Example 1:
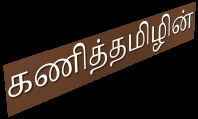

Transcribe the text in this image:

கணித்தமிழின்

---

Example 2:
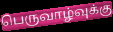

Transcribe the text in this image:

பெருவாழ்வுக்கு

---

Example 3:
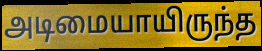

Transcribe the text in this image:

அடிமையாயிருந்த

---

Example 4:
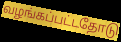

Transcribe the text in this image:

வழங்கப்பட்டதோடு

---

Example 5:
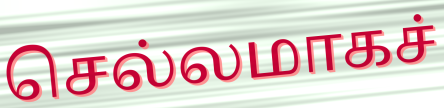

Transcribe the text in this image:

செல்லமாகச்